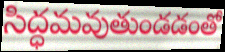
సిద్ధమవుతుండడంతో